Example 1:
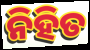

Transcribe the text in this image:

ନିହିତ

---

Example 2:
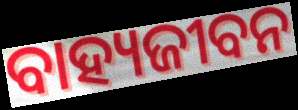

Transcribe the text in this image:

ବାହ୍ୟଜୀବନ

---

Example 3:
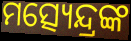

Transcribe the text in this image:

ମତ୍ସ୍ୟେନ୍ଦ୍ରଙ୍କ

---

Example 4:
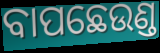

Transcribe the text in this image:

ବାପଛେଉଣ୍ଡ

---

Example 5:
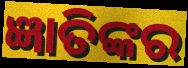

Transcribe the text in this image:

ଜ୍ଞାତିଙ୍କର